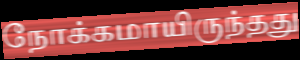
நோக்கமாயிருந்தது